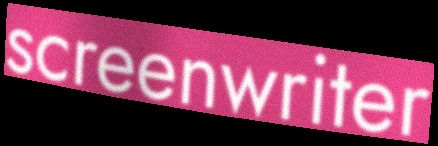
screenwriter